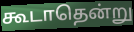
கூடாதென்று